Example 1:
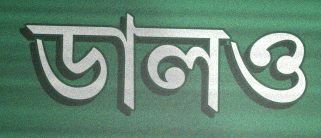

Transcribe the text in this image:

ডালও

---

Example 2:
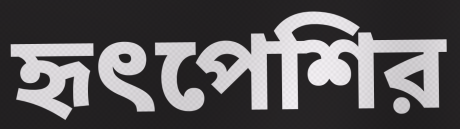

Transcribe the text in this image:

হৃৎপেশির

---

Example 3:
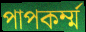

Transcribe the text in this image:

পাপকর্ম্ম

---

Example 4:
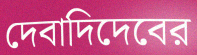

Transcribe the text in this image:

দেবাদিদেবের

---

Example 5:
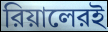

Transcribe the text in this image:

রিয়ালেরই